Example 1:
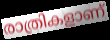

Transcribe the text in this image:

രാത്രികളാണ്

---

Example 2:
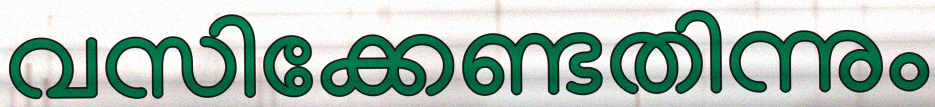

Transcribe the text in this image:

വസിക്കേണ്ടതിന്നും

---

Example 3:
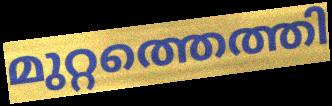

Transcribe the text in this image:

മുറ്റത്തെത്തി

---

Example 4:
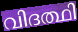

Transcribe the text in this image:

വിദത്ഥി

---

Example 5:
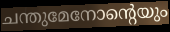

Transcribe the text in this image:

ചന്തുമേനോന്റെയും